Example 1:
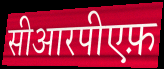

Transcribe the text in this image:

सीआरपीएफ़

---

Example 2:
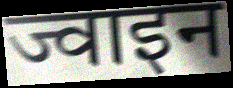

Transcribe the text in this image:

ज्‍वाइन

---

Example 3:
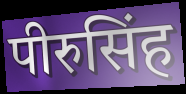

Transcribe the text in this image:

पीरुसिंह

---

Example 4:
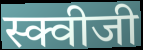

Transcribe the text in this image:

स्क्वीजी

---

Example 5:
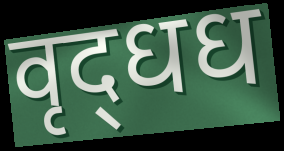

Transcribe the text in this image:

वृद्धध